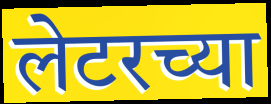
लेटरच्या